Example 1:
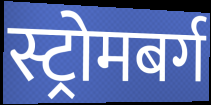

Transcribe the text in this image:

स्ट्रोमबर्ग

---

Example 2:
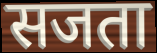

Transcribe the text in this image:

सजता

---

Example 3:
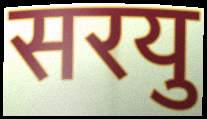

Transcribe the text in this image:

सरयु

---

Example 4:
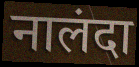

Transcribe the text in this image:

नालंदा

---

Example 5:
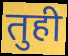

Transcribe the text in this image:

तुही